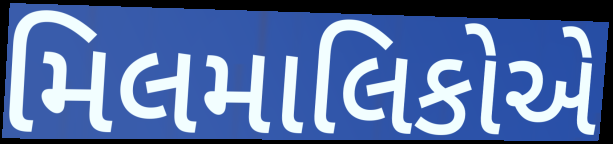
મિલમાલિકોએ